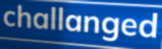
challanged